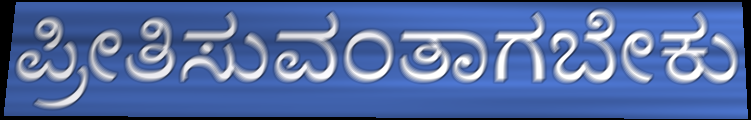
ಪ್ರೀತಿಸುವಂತಾಗಬೇಕು